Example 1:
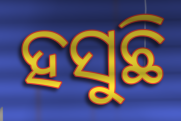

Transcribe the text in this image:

ହସୁଛି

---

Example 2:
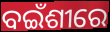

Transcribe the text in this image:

ବଇଁଶୀରେ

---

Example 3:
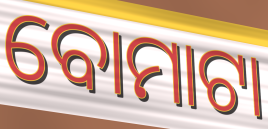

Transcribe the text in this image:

ବୋମାଟା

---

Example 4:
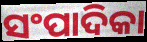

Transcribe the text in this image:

ସଂପାଦିକା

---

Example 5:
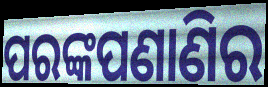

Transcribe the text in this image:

ପରଙ୍କପଣାଣିର